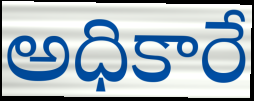
అధికారే